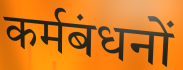
कर्मबंधनों